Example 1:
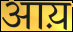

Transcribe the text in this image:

आय़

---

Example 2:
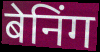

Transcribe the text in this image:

बेनिंग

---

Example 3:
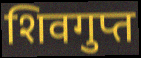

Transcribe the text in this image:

शिवगुप्त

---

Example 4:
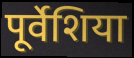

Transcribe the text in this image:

पूर्वेशिया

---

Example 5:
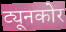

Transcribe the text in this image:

ट्यूनकोर